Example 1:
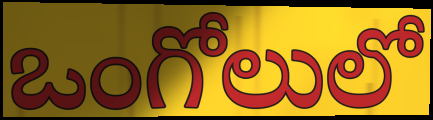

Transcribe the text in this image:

ఒంగోలులో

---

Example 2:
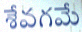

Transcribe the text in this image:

శేవగమే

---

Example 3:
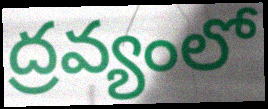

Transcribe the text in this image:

ద్రవ్యంలో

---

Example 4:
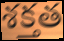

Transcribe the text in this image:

శక్తత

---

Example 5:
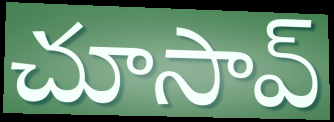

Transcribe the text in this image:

చూసావ్